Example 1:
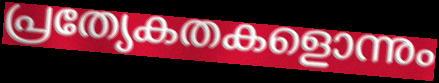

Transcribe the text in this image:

പ്രത്യേകതകളൊന്നും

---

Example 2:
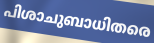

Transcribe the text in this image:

പിശാചുബാധിതരെ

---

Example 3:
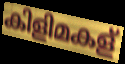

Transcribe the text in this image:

കിളിമകള്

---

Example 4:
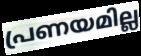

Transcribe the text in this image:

പ്രണയമില്ല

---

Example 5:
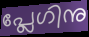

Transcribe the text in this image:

പ്ലേഗിനു